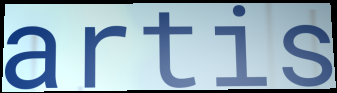
artis